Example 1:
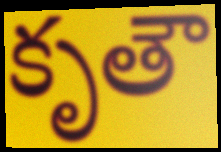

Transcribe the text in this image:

కృతౌ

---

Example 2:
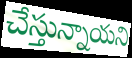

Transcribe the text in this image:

చేస్తున్నాయని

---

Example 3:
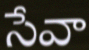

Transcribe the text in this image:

సేవా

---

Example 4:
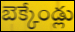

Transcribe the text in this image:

బెక్కేండ్లు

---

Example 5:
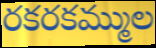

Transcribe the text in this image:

రకరకమ్ముల